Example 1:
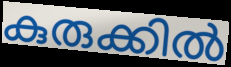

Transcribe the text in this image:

കുരുക്കിൽ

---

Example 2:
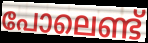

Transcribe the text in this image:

പോലെണ്ട്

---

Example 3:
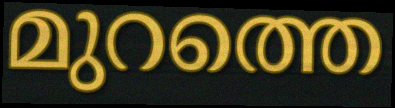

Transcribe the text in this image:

മുറത്തെ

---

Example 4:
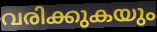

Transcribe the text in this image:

വരിക്കുകയും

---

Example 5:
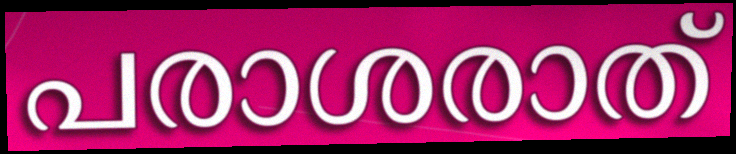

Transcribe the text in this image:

പരാശരാത്